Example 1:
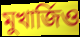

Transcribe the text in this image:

মুখার্জিও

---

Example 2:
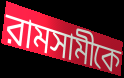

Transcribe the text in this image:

রামসামীকে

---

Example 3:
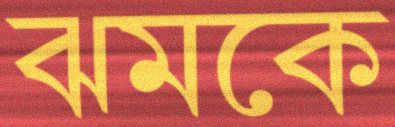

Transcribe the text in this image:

ঝমকে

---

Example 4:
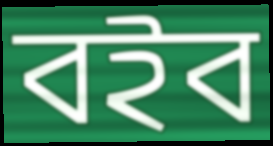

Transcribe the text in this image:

বইব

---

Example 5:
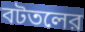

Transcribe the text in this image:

বটতলের